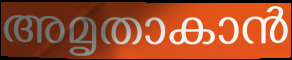
അമൃതാകാൻ